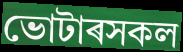
ভোটাৰসকল